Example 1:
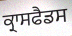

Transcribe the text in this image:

ਕ੍ਰਾਸਫੈਡਸ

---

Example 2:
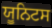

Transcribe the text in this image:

ਯੂਨਿਟਸ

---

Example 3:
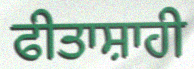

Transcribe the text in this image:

ਫੀਤਾਸ਼ਾਹੀ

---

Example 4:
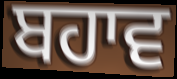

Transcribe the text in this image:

ਬਹਾਵ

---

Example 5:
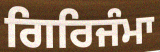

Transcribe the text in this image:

ਗਿਰਿਜੰਮਾ